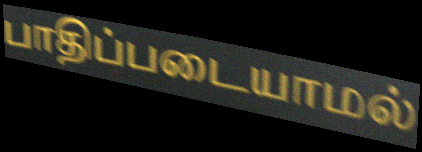
பாதிப்படையாமல்